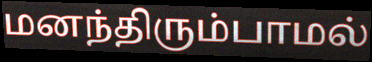
மனந்திரும்பாமல்